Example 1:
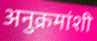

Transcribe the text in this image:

अनुक्रमांशी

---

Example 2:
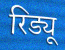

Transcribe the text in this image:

रिड्यू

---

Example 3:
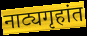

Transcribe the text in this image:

नाट्यगृहांत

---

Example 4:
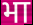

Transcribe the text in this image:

भा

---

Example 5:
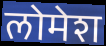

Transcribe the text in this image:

लोमेश